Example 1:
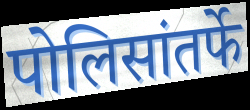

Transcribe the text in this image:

पोलिसांतर्फे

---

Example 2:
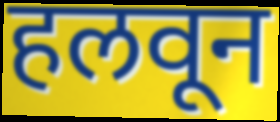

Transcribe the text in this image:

हलवून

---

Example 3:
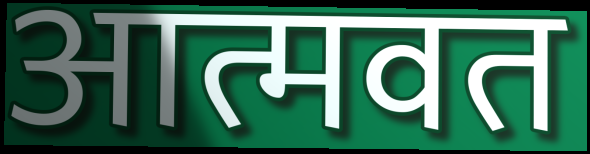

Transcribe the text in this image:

आत्मवत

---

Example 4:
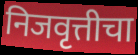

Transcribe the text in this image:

निजवृत्तीचा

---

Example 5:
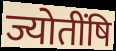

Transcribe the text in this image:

ज्योतींषि